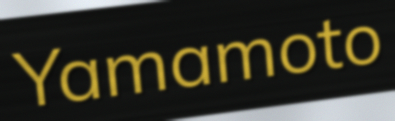
Yamamoto